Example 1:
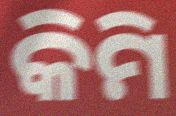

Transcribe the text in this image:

କିମି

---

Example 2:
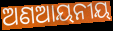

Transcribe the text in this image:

ଅଣଆୟନୀୟ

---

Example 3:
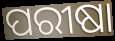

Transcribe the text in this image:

ପରୀଷା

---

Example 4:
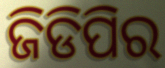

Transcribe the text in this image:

ଜିଡିପିର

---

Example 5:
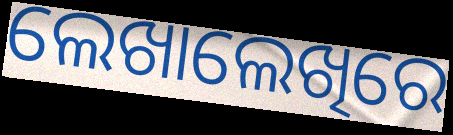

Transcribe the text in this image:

ଲେଖାଲେଖିରେ